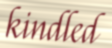
kindled